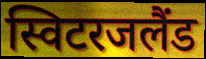
स्विटरजलैंड